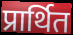
प्रार्थित